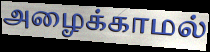
அழைக்காமல்